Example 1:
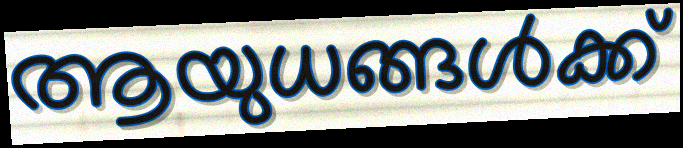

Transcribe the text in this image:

ആയുധങ്ങൾക്ക്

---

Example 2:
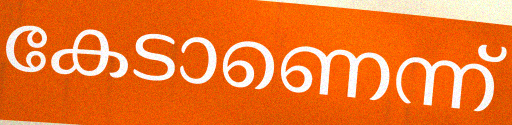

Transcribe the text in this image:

കേടാണെന്ന്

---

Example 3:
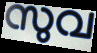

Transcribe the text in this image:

സുവ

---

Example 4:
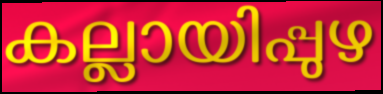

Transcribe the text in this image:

കല്ലായിപ്പുഴ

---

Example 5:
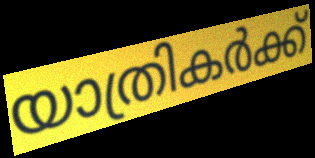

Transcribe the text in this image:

യാത്രികർക്ക്